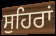
ਸੁਹਿਰਾਂ